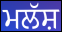
ਮਲੱਸ਼